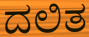
ದಲಿತ